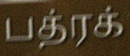
பத்ரக்